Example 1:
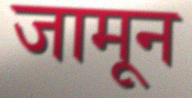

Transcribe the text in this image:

जामून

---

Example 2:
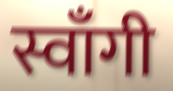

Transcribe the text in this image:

स्वाँगी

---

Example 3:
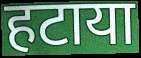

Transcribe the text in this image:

हटाया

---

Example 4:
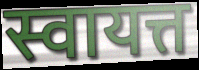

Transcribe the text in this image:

स्वायत्त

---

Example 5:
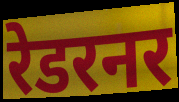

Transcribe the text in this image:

रेडरनर